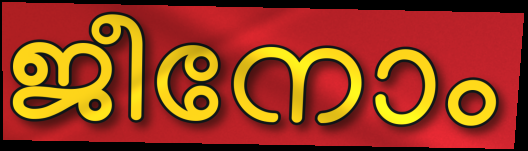
ജീനോം